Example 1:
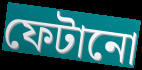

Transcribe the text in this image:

ফেটানো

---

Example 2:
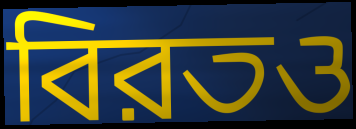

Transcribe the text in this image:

বিরতও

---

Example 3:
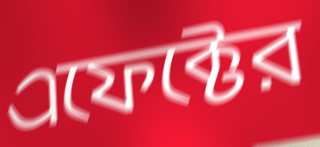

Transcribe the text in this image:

এফেক্টের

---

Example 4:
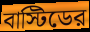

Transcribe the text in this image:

বাস্টিডের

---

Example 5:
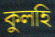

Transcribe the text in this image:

কুলহি